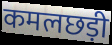
कमलछड़ी